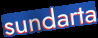
sundarta